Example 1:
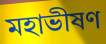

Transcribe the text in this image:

মহাভীষণ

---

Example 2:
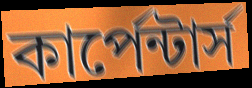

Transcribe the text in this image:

কার্পেন্টার্স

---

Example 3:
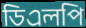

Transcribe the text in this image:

ডিএলপি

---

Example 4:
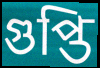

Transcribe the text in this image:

গুপ্তি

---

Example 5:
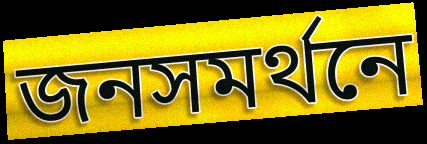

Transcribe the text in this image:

জনসমর্থনে